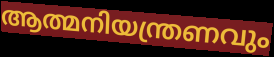
ആത്മനിയന്ത്രണവും